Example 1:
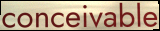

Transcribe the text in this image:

conceivable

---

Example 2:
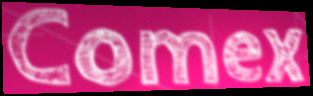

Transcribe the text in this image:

Comex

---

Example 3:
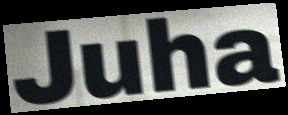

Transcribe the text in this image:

Juha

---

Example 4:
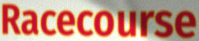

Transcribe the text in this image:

Racecourse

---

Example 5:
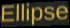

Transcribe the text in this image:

Ellipse